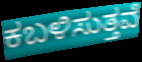
ಕಬಳಿಸುತ್ತವೆ